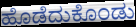
ಹೊಡೆದುಕೊಂಡು